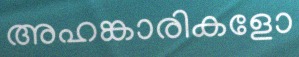
അഹങ്കാരികളോ